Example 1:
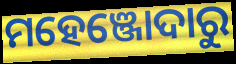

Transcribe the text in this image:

ମହେଞ୍ଜୋଦାରୁ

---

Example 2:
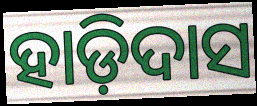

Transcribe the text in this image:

ହାଡ଼ିଦାସ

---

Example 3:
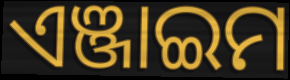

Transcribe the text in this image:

ଏଞ୍ଜାଇମ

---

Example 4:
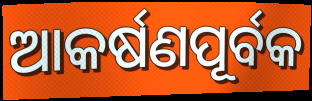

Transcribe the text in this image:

ଆକର୍ଷଣପୂର୍ବକ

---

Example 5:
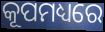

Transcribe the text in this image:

କୂପମଧ୍ୟରେ